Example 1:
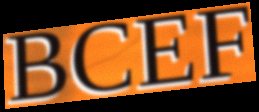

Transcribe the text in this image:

BCEF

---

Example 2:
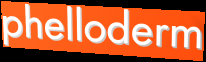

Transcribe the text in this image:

phelloderm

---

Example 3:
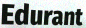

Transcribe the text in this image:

Edurant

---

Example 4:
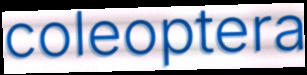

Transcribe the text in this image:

coleoptera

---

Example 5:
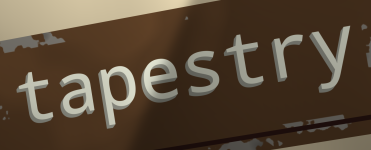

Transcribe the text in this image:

tapestry